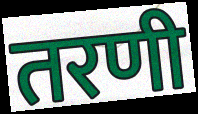
तरणी